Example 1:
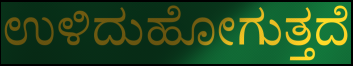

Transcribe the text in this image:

ಉಳಿದುಹೋಗುತ್ತದೆ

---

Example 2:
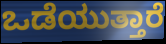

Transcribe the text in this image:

ಒಡೆಯುತ್ತಾರೆ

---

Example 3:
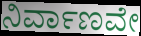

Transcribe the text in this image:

ನಿರ್ವಾಣವೇ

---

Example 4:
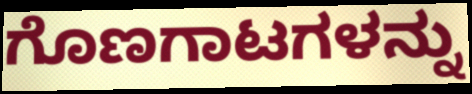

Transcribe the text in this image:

ಗೊಣಗಾಟಗಳನ್ನು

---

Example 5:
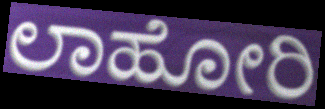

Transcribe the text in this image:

ಲಾಹೋರಿ